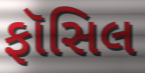
ફૉસિલ